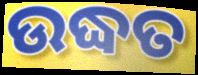
ଉଦ୍ଧତ